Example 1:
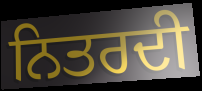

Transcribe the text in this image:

ਨਿਤਰਦੀ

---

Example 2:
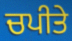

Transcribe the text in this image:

ਚਪੀਤੇ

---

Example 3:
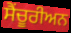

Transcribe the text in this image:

ਸੈਂਚੂਰੀਅਨ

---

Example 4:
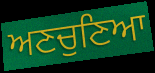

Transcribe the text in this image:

ਅਣਚੁਣਿਆ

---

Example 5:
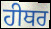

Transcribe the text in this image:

ਹੀਥਰ